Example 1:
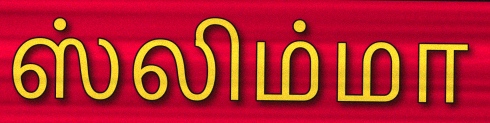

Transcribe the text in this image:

ஸ்லிம்மா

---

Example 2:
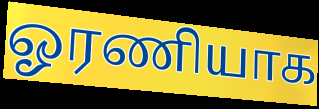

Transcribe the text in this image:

ஓரணியாக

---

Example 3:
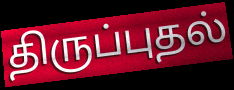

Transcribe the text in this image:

திருப்புதல்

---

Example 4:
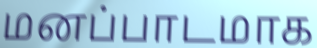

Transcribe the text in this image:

மனப்பாடமாக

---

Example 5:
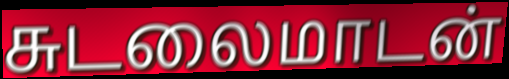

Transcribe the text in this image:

சுடலைமாடன்